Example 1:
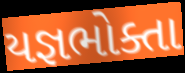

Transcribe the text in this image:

યજ્ઞભોક્તા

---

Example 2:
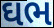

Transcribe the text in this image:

ઘભ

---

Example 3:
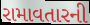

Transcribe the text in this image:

રામાવતારની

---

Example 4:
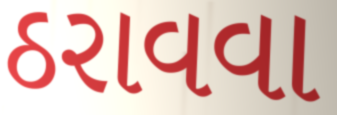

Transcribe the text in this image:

ઠરાવવા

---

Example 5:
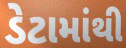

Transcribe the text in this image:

ડેટામાંથી